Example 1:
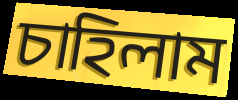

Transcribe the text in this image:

চাহিলাম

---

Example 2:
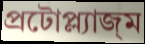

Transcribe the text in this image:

প্রটোপ্ল্যাজ্ম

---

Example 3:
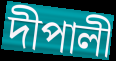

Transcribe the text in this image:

দীপালী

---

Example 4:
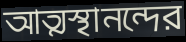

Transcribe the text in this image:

আত্মস্থানন্দের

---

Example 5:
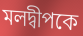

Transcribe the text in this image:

মলদ্বীপকে